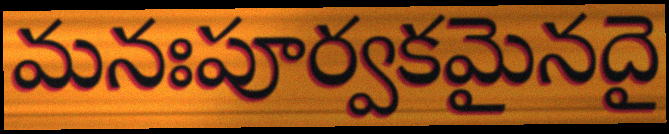
మనఃపూర్వకమైనదై